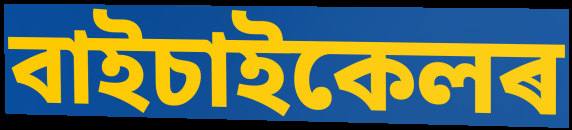
বাইচাইকেলৰ